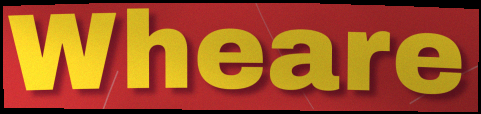
Wheare